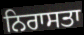
ਨਿਰਾਸਤਾ